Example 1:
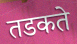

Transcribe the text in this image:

तडकते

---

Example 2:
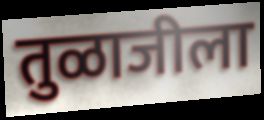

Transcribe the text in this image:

तुळाजीला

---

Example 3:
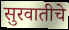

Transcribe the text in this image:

सुरवातीचे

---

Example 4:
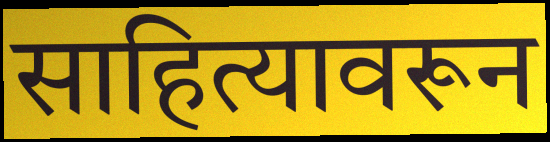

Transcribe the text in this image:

साहित्यावरून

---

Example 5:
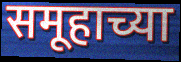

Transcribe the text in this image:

समूहाच्या